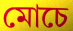
মোচে